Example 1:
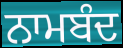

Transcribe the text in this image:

ਨਾਮਬੰਦ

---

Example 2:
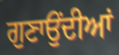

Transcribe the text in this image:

ਗੁਣਾਉਂਦੀਆਂ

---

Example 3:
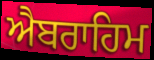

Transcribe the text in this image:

ਐਬਰਾਹਿਮ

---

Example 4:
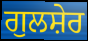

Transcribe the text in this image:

ਗੁਲਸ਼ੇਰ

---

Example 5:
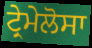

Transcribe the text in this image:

ਟ੍ਰੇਮੇਲੋਸਾ